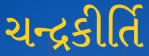
ચન્દ્રકીર્તિ